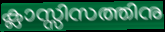
ക്ലാസ്സിസത്തിനു